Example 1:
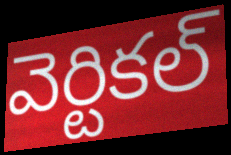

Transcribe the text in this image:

వెర్టికల్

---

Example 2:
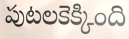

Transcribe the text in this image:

పుటలకెక్కింది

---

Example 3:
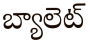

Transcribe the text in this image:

బ్యాలెట్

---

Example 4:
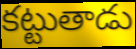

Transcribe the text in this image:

కట్టుతాడు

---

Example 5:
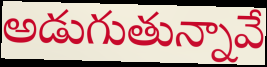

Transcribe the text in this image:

అడుగుతున్నావే